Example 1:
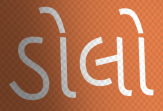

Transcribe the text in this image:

ડોલો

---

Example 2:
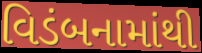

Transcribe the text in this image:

વિડંબનામાંથી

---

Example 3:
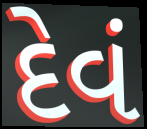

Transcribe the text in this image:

દેવં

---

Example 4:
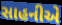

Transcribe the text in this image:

સાહનીએ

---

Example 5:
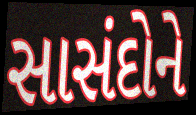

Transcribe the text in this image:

સાસંદોને